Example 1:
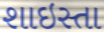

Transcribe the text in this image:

શાઇસ્તા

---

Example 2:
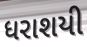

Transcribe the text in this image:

ધરાશયી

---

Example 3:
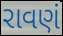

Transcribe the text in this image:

રાવણં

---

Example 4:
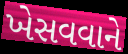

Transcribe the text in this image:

ખેસવવાને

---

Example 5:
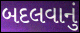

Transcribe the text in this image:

બદલવાનું